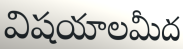
విషయాలమీద